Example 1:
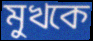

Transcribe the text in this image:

মুখকে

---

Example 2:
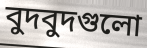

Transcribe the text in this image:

বুদবুদগুলো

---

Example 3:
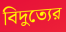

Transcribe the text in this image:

বিদুত্যের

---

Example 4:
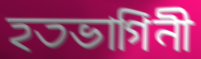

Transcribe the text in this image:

হতভাগিনী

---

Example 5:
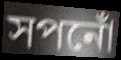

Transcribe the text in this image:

সপনোঁ